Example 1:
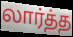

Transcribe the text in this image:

லார்த்த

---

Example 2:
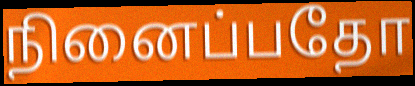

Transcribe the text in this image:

நினைப்பதோ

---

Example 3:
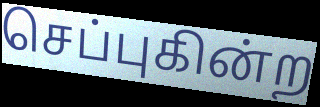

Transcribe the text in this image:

செப்புகின்ற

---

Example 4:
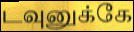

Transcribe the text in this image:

டவுனுக்கே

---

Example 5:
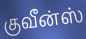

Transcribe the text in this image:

குவீன்ஸ்